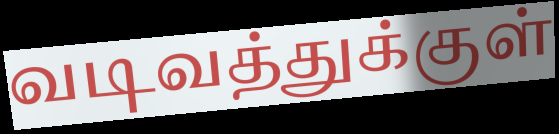
வடிவத்துக்குள்